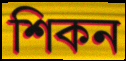
শিকন